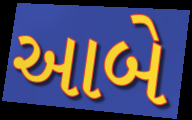
આબે